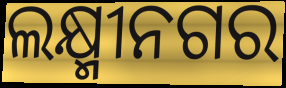
ଲକ୍ଷ୍ମୀନଗର